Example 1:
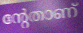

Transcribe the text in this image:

ന്റേതാണ്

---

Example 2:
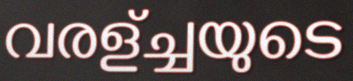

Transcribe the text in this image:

വരള്ച്ചയുടെ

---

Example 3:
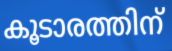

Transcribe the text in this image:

കൂടാരത്തിന്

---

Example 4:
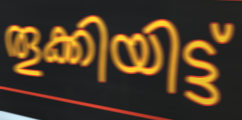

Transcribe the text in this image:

തൂക്കിയിട്ട്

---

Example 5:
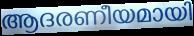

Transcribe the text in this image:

ആദരണീയമായി